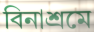
বিনাশ্রমে